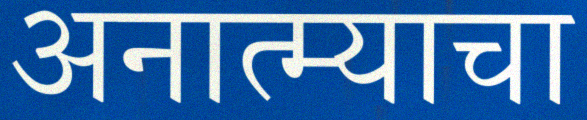
अनात्म्याचा